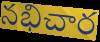
నభిచార